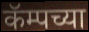
कॅम्पच्या